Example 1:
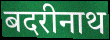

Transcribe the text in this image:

बदरीनाथ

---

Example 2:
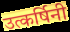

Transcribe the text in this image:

उत्कर्षिनी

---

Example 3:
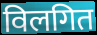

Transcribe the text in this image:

विलगित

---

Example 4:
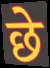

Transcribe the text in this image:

छे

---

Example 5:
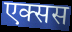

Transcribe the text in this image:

एक्सस